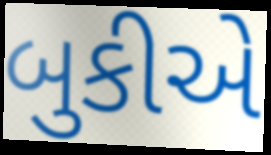
બુકીએ